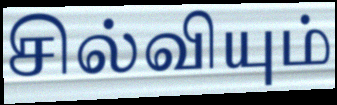
சில்வியும்